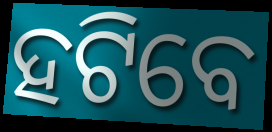
ହଟିବେ